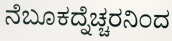
ನೆಬೂಕದ್ನೆಚ್ಚರನಿಂದ